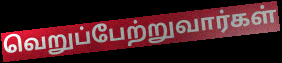
வெறுப்பேற்றுவார்கள்